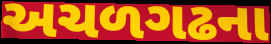
અચળગઢના